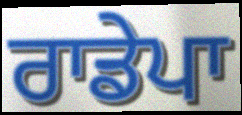
ਰਾਡੇਪਾ